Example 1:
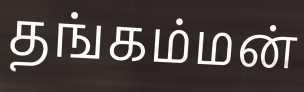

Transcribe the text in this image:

தங்கம்மன்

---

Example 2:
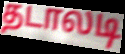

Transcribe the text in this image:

தடாலடி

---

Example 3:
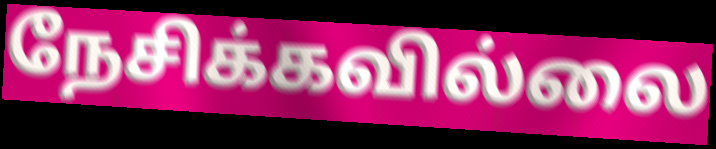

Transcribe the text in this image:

நேசிக்கவில்லை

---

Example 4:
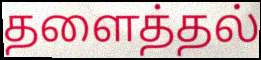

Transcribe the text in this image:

தளைத்தல்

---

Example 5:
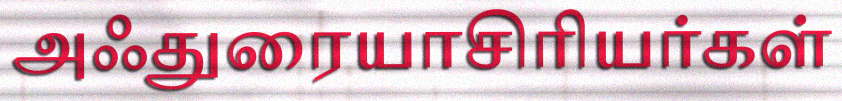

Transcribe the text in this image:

அஃதுரையாசிரியர்கள்